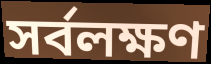
সর্বলক্ষণ